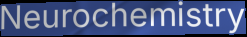
Neurochemistry